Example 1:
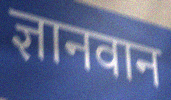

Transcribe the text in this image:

ज्ञानवान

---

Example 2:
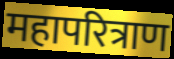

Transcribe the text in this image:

महापरित्राण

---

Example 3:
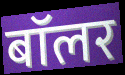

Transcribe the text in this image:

बॉलर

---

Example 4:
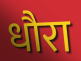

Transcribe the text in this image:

धौरा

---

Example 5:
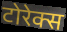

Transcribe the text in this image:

टोरेक्स